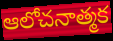
ఆలోచనాత్మక